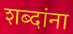
शब्दांना